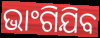
ଭାଂଗିଯିବ